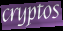
cryptos